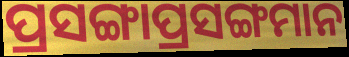
ପ୍ରସଙ୍ଗାପ୍ରସଙ୍ଗମାନ